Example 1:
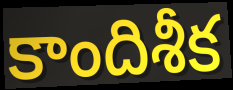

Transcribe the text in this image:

కాందిశీక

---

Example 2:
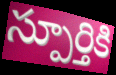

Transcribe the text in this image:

స్పూర్తికి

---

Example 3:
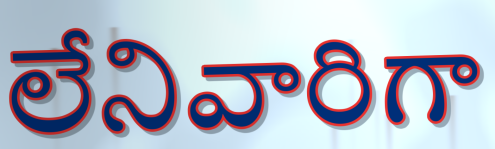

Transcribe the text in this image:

లేనివారిగా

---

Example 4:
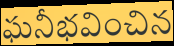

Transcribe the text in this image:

ఘనీభవించిన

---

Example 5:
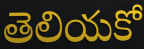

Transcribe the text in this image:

తెలియకో